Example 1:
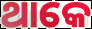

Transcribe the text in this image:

ଥାକେ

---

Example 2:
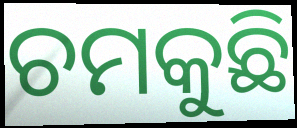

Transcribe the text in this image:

ଚମକୁଛି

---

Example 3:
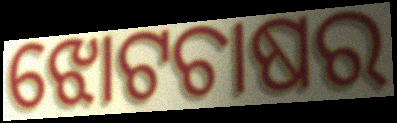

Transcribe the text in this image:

ଝୋଟଚାଷର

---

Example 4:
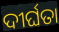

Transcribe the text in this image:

ଦୀର୍ଘତା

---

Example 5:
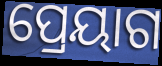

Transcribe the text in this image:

ପ୍ରେୟାଗ